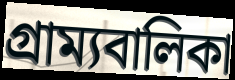
গ্রাম্যবালিকা